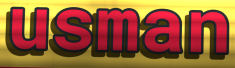
usman